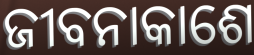
ଜୀବନାକାଶେ